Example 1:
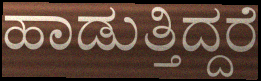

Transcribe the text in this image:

ಹಾಡುತ್ತಿದ್ದರೆ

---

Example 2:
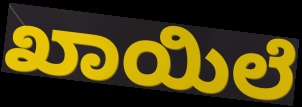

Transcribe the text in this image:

ಖಾಯಿಲೆ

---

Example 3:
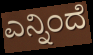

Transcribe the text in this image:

ಎನ್ನಿಂದೆ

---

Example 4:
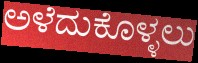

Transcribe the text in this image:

ಅಳೆದುಕೊಳ್ಳಲು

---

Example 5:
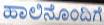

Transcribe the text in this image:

ಹಾಲಿನೊಂದಿಗೆ